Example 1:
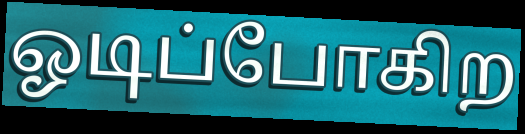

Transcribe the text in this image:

ஓடிப்போகிற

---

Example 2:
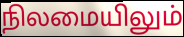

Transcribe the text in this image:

நிலமையிலும்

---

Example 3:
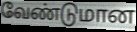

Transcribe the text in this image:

வேண்டுமான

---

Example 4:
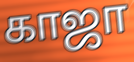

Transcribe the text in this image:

காஜா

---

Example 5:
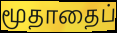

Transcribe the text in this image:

மூதாதைப்